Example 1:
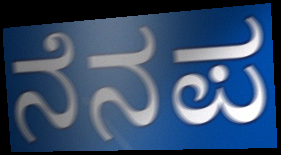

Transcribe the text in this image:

ನೆನಪ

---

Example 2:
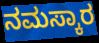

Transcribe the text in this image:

ನಮಸ್ಕಾರ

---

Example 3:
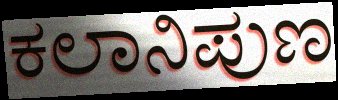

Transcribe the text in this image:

ಕಲಾನಿಪುಣ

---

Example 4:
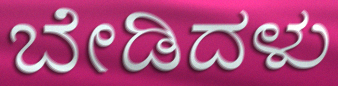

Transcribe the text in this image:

ಬೇಡಿದಳು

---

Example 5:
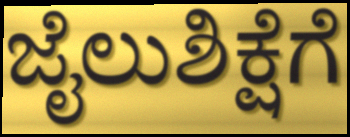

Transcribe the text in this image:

ಜೈಲುಶಿಕ್ಷೆಗೆ